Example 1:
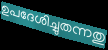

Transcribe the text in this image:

ഉപദേശിച്ചുതന്നതു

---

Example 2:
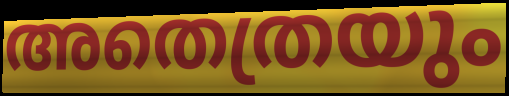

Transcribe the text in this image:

അതെത്രയും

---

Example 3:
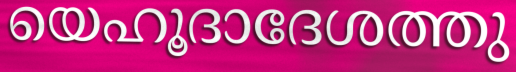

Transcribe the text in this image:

യെഹൂദാദേശത്തു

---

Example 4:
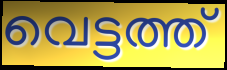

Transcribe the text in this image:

വെട്ടത്ത്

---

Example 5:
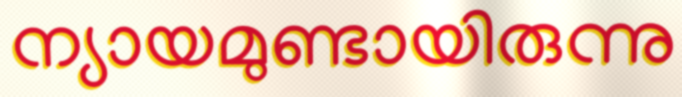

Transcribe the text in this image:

ന്യായമുണ്ടായിരുന്നു